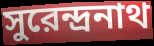
সুরেন্দ্রনাথ